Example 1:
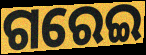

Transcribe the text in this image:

ଗରେଇ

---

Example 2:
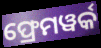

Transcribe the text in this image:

ଫ୍ରେମୱର୍କ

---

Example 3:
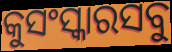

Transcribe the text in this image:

କୁସଂସ୍କାରସବୁ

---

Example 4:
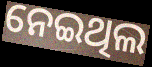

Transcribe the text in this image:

ନେଇଥିଲ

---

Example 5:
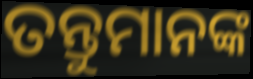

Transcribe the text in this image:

ତନ୍ତୁମାନଙ୍କ